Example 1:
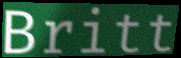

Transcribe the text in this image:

Britt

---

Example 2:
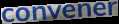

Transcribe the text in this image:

convener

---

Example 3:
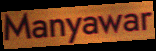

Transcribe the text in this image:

Manyawar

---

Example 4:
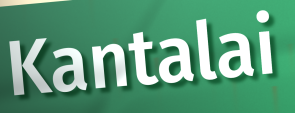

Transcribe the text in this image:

Kantalai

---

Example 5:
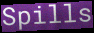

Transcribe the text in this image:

Spills